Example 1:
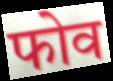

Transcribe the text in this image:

फोव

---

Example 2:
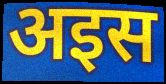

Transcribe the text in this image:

अइस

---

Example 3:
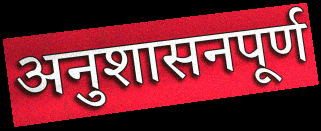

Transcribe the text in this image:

अनुशासनपूर्ण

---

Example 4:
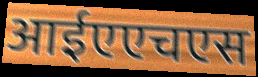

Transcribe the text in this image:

आईएएचएस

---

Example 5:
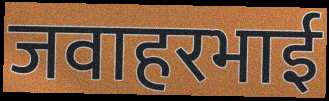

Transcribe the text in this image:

जवाहरभाई